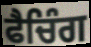
ਫੈਚਿੰਗ